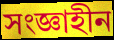
সংজ্ঞাহীন